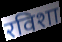
रविशा